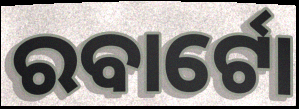
ରବାର୍ଟୋ